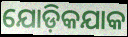
ଯୋଡ଼ିକଯାକ